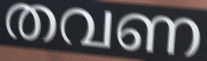
തവണ